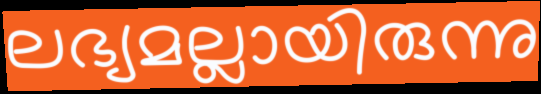
ലഭ്യമല്ലായിരുന്നു